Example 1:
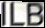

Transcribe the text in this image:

ILB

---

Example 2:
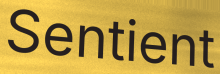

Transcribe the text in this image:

Sentient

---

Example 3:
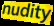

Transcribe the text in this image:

nudity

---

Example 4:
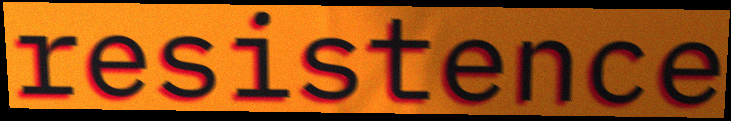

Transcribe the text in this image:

resistence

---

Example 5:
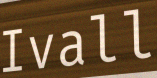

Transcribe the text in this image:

Ivall